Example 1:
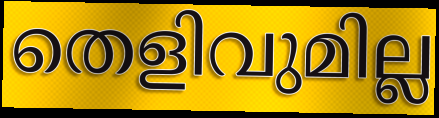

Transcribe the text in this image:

തെളിവുമില്ല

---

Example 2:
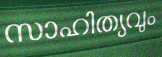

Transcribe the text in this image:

സാഹിത്യവും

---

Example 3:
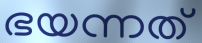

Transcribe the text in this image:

ഭയന്നത്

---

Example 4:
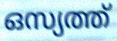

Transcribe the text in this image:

ഒസ്യത്ത്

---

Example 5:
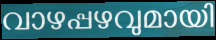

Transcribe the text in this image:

വാഴപ്പഴവുമായി